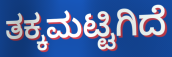
ತಕ್ಕಮಟ್ಟಿಗಿದೆ